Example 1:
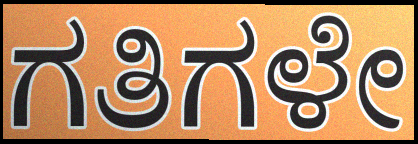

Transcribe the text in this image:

ಗತಿಗಳೇ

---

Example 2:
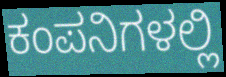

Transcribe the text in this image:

ಕಂಪನಿಗಳಲ್ಲಿ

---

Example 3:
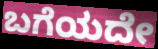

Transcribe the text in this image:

ಬಗೆಯದೇ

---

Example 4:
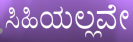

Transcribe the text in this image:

ಸಿಹಿಯಲ್ಲವೇ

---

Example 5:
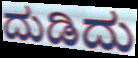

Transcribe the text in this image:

ದುಡಿದು